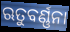
ଋତୁବର୍ଣ୍ଣନା